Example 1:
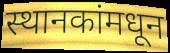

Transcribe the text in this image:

स्थानकांमधून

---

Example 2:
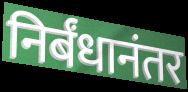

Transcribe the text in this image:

निर्बंधानंतर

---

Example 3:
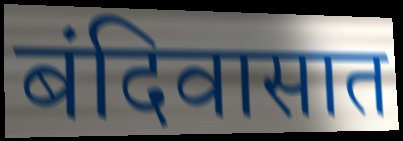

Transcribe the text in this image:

बंदिवासात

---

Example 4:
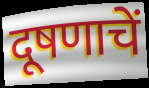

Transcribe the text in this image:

दूषणाचें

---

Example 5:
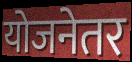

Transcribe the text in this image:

योजनेतर